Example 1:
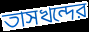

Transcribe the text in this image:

তাসখন্দের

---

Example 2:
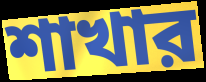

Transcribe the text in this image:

শাখার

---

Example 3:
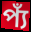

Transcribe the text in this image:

প্যঁ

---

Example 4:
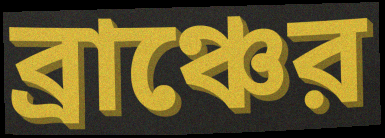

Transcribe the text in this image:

ব্রাঞ্চের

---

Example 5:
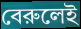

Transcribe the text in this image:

বেরুলেই